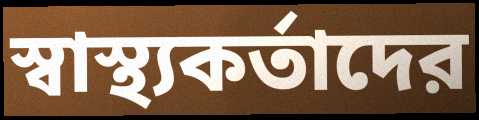
স্বাস্থ্যকর্তাদের